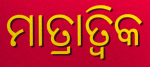
ମାତ୍ରାତ୍ଵିକ